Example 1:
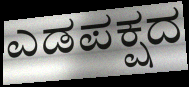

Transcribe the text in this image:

ಎಡಪಕ್ಷದ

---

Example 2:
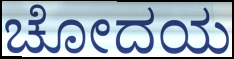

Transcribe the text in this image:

ಚೋದಯ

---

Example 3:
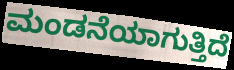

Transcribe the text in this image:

ಮಂಡನೆಯಾಗುತ್ತಿದೆ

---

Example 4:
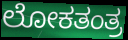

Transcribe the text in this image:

ಲೋಕತಂತ್ರ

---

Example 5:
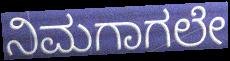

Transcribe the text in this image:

ನಿಮಗಾಗಲೇ